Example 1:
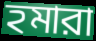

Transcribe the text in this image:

হমারা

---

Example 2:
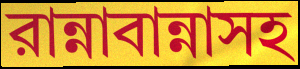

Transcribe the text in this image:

রান্নাবান্নাসহ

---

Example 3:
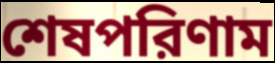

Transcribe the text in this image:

শেষপরিণাম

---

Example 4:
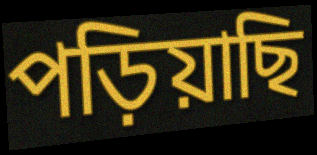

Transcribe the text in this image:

পড়িয়াছি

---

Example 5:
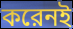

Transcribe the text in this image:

করেনই